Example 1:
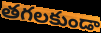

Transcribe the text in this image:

తగలకుండా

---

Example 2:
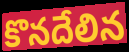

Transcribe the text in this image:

కొనదేలిన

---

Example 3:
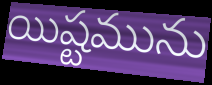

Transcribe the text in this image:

యిష్టమును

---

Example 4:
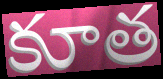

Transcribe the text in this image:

కూత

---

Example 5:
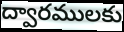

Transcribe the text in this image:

ద్వారములకు